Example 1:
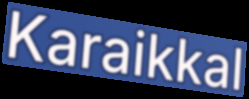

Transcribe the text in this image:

Karaikkal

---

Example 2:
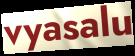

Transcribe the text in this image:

vyasalu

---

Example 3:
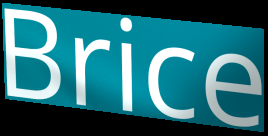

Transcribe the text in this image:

Brice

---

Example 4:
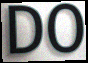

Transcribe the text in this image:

DO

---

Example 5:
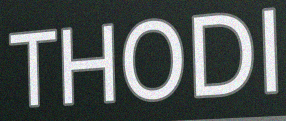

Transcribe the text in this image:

THODI